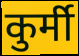
कुर्मी